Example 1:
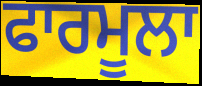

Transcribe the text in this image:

ਫਾਰਮੂਲਾ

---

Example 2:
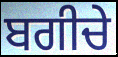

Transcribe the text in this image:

ਬਗੀਚੇ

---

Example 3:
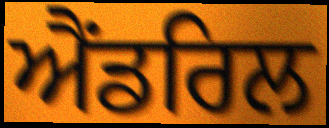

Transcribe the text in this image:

ਐਂਡਰਿਲ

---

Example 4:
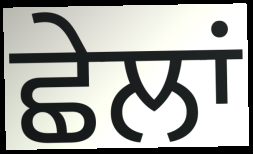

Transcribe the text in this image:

ਛੇਲਾਂ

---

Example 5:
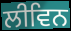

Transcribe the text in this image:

ਲੀਵਿਨ